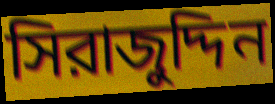
সিরাজুদ্দিন